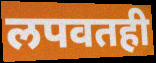
लपवतही